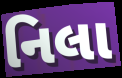
નિલા